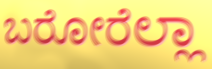
ಬರೋರೆಲ್ಲಾ